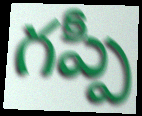
గప్పీ